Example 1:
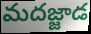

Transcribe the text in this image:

మదజ్జాడ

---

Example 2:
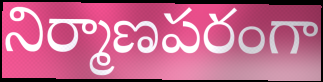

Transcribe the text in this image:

నిర్మాణపరంగా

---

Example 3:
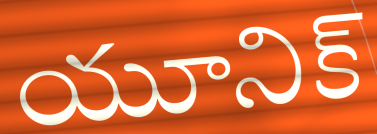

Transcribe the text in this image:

యూనిక్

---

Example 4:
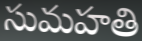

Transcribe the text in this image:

సుమహతి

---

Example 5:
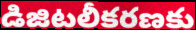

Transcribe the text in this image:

డిజిటలీకరణకు